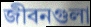
জীবনগুলা